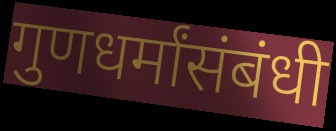
गुणधर्मांसंबंधी